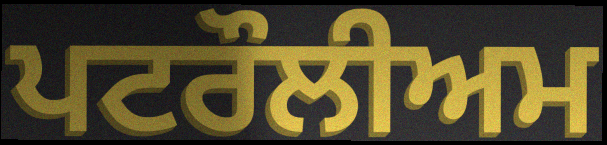
ਪਟਰੌਲੀਅਮ